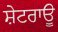
ਸ਼ੇਟਰਾਊ